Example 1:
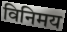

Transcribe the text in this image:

विनिमय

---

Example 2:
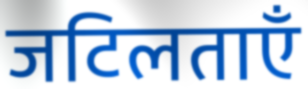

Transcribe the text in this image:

जटिलताएँ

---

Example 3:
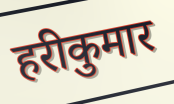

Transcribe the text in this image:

हरीकुमार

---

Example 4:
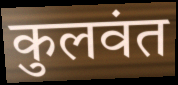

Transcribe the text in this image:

कुलवंत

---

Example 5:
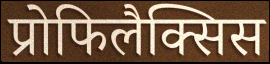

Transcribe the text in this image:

प्रोफिलैक्सिस